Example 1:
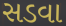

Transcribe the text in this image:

સડવા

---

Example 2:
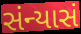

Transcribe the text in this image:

સંન્યાસં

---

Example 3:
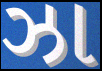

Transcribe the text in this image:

ઝા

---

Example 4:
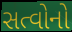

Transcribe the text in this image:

સત્વોનો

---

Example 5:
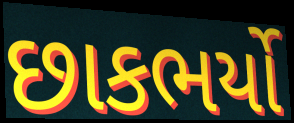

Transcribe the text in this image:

છાકભર્યો